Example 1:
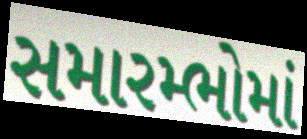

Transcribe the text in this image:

સમારમ્ભોમાં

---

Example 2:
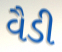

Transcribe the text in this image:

વૈડી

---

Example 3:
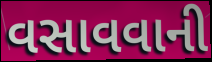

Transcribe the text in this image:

વસાવવાની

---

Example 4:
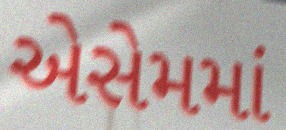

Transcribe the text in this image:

એસેમમાં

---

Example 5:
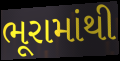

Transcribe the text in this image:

ભૂરામાંથી